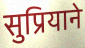
सुप्रियाने